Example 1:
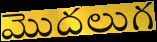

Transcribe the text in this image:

మొదలుగ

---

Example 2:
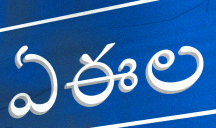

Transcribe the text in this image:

ఏఈల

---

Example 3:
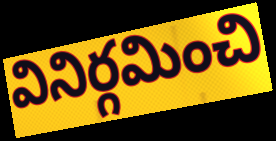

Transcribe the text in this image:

వినిర్గమించి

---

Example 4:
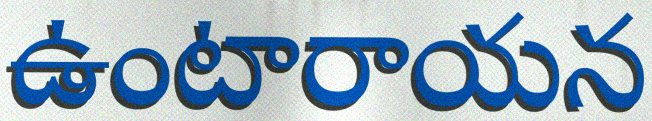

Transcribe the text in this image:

ఉంటారాయన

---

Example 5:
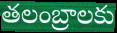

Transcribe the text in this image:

తలంబ్రాలకు